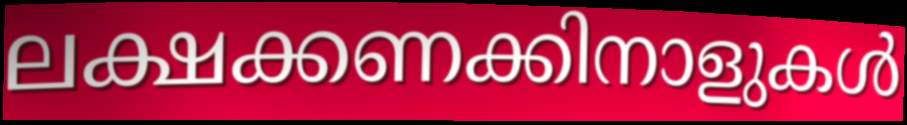
ലക്ഷക്കണക്കിനാളുകൾ